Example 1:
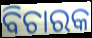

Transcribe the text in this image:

ବିଚାରକ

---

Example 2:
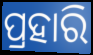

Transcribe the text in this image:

ପ୍ରହାରି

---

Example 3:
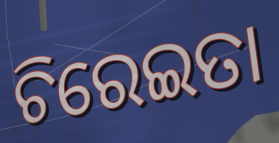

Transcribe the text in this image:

ଚିରେଇତା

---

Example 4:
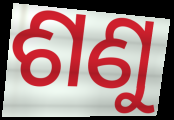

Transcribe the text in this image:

ଶଣୁ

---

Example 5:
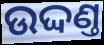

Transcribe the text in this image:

ଉଦ୍ଦଣ୍ତ